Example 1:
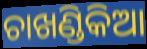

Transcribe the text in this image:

ଚାଖଣ୍ଡିକିଆ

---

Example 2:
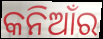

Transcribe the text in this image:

କନିଆଁର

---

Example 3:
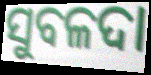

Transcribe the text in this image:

ସୁବଳଦା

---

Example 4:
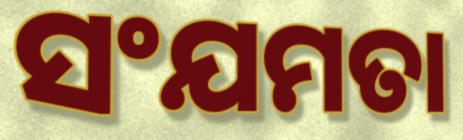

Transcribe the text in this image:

ସଂଯମତା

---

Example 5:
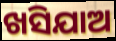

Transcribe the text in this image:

ଖସିଯାଅ